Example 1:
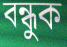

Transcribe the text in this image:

বন্ধুক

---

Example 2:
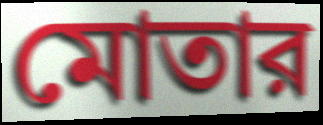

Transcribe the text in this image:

মোতার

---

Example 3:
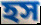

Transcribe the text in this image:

হস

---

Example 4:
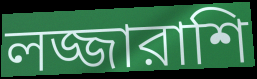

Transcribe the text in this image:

লজ্জারাশি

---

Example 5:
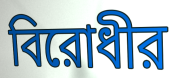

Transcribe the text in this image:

বিরোধীর